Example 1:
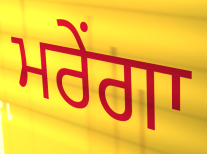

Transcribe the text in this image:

ਮਰੇਂਗਾ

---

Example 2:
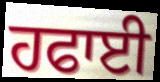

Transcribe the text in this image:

ਹਫਾਈ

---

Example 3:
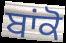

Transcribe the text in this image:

ਬਾਂਕੋ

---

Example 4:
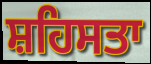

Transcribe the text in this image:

ਸ਼ਹਿਸਤਾ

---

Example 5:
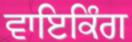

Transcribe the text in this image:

ਵਾਇਕਿੰਗ